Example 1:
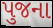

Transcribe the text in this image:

પુજના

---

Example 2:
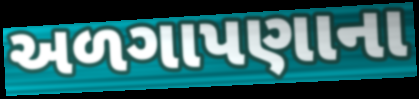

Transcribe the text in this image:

અળગાપણાના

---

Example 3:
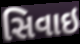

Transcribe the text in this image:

સિવાઇ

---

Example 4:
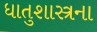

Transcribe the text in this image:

ધાતુશાસ્ત્રના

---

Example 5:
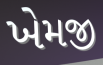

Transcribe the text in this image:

ખેમજી